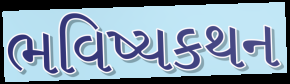
ભવિષ્યકથન